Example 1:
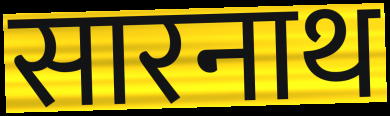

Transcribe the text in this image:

सारनाथ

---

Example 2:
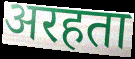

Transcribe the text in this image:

अरहता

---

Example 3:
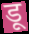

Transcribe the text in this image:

डू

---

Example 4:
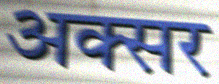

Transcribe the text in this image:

अक्‍सर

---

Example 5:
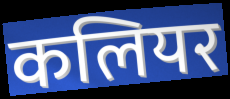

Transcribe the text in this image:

कलियर